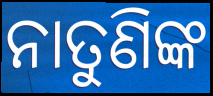
ନାତୁଣିଙ୍କ